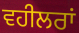
ਵਹੀਲਰਾਂ